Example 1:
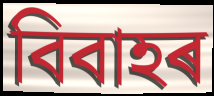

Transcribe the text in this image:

বিবাহৰ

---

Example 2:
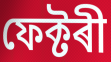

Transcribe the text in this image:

ফেক্টৰী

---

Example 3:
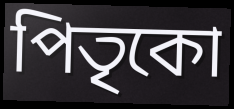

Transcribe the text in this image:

পিতৃকো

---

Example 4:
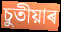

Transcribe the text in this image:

চুতীয়াৰ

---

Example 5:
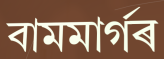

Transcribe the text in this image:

বামমাৰ্গৰ